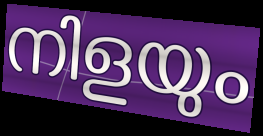
നിളയും